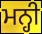
ਮਨ੍ਹੀ